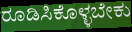
ರೂಡಿಸಿಕೊಳ್ಳಬೇಕು